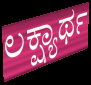
ಲಕ್ಷ್ಯಾರ್ಥ